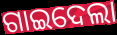
ଗାଇଦେଲା